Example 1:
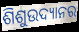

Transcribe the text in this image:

ଶିଶୁଉଦ୍ୟାନର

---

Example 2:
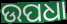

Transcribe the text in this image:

ଉପଧା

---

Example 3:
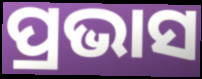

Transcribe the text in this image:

ପ୍ରଭାସ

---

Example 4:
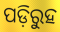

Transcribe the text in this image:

ପଡ଼ିରୁହ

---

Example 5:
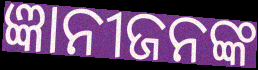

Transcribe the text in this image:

ଜ୍ଞାନୀଜନଙ୍କ